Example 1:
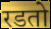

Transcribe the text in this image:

रडतो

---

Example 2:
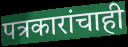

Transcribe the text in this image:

पत्रकारांचाही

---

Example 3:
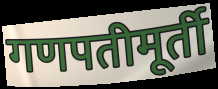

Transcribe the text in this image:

गणपतीमूर्ती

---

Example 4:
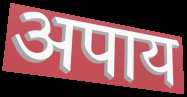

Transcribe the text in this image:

अपाय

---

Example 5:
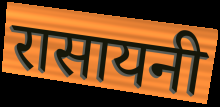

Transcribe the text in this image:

रासायनी